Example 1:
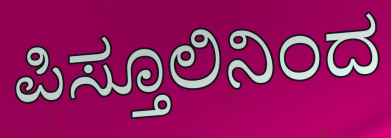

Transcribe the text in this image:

ಪಿಸ್ತೂಲಿನಿಂದ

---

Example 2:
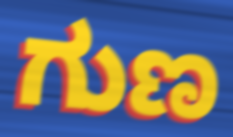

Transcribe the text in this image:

ಗುಣ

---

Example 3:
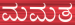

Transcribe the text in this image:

ಮಮತ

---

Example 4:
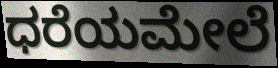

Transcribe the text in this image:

ಧರೆಯಮೇಲೆ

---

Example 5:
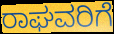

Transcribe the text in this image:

ರಾಘವರಿಗೆ